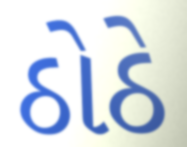
ઠોઠે